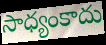
సాధ్యంకాదు